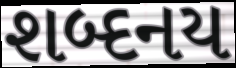
શબ્દનય